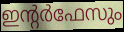
ഇന്റർഫേസും